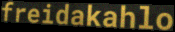
freidakahlo